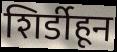
शिर्डीहून